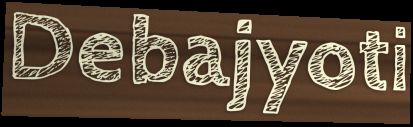
Debajyoti